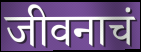
जीवनाचं